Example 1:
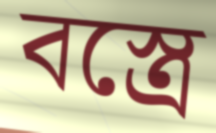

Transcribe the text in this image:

বস্ত্রে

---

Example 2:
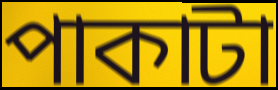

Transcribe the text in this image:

পাকাটা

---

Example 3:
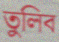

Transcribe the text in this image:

তুলিব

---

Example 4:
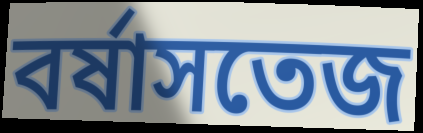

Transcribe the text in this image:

বর্ষাসতেজ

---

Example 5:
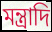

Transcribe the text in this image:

মন্ত্রাদি